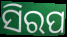
ସିରପ